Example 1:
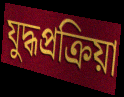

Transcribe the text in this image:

যুদ্ধপ্রক্রিয়া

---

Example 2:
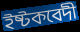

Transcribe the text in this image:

ইষ্টকবেদী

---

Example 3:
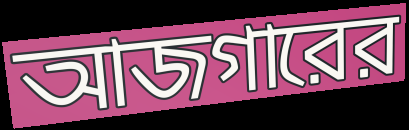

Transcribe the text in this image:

আজগারের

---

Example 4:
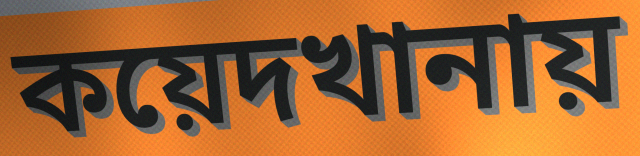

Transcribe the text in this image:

কয়েদখানায়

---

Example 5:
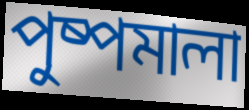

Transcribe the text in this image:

পুষ্পমালা